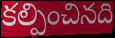
కల్పించినది